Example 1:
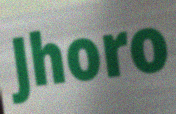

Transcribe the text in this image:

Jhoro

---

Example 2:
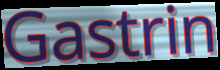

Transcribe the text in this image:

Gastrin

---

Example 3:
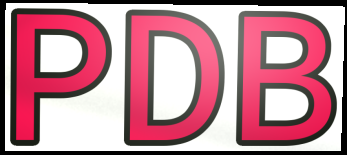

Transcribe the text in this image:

PDB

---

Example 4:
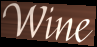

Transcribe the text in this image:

Wine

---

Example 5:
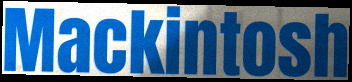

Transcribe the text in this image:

Mackintosh